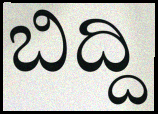
ಬಿದ್ದಿ